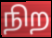
நிற